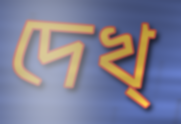
দেখ্